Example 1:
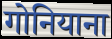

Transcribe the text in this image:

गोनियाना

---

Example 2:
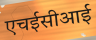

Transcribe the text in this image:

एचईसीआई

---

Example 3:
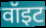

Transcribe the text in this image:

वॉइट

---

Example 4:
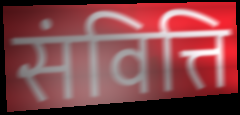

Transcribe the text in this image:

संवित्ति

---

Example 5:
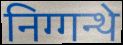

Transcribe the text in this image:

निग्गन्थे